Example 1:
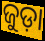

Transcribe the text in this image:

ଜୁଡ଼ା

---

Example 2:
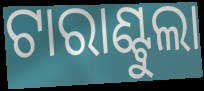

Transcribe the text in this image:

ଟାରାଣ୍ଟୁଲା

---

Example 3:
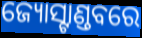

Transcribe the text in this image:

ଜ୍ୟୋସ୍ଟାଣ୍ଡବରେ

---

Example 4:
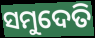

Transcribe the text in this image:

ସମୁଦେତି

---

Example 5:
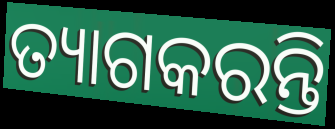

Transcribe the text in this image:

ତ୍ୟାଗକରନ୍ତି